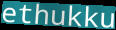
ethukku